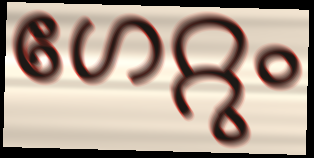
ഗേറ്റും